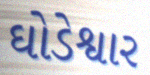
ઘોડેશ્વાર